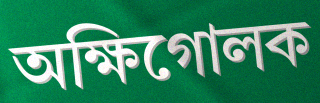
অক্ষিগোলক